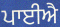
ਪਾਈਐ